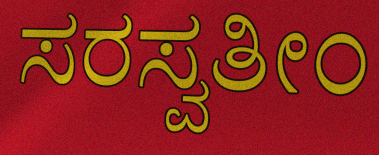
ಸರಸ್ವತೀಂ